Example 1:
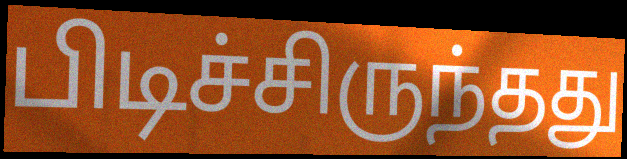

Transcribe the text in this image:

பிடிச்சிருந்தது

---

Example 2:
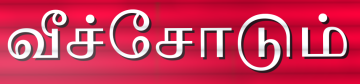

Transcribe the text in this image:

வீச்சோடும்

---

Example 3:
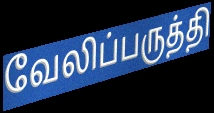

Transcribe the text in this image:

வேலிப்பருத்தி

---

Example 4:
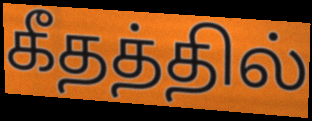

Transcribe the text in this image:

கீதத்தில்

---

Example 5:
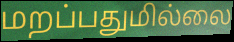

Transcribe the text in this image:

மறப்பதுமில்லை